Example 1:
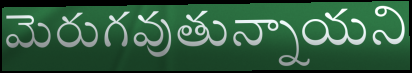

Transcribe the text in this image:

మెరుగవుతున్నాయని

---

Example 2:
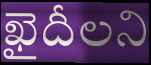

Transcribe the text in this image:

ఖైదీలని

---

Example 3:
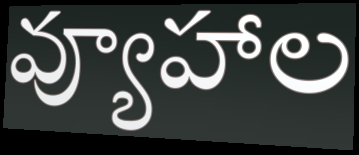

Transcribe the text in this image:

వ్యూహాల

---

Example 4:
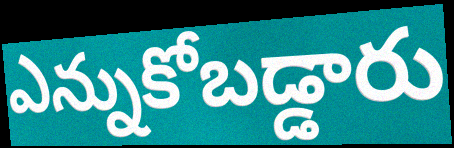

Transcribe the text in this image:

ఎన్నుకోబడ్డారు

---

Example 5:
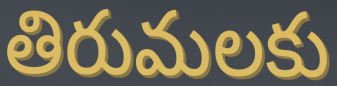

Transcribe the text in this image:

తిరుమలకు